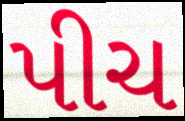
પીચ